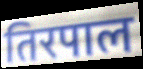
तिरपाल